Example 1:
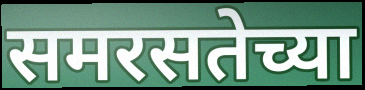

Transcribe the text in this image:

समरसतेच्या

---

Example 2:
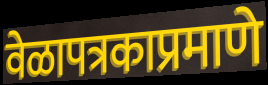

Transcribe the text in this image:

वेळापत्रकाप्रमाणे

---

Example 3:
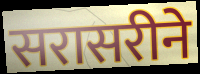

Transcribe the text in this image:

सरासरीने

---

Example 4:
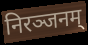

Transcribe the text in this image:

निरञ्जनम्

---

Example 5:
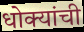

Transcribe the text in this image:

धोक्यांची